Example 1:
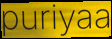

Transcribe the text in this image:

puriyaa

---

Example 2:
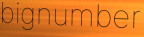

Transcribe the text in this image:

bignumber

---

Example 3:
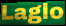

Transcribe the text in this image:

Laglo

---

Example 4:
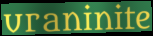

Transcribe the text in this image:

uraninite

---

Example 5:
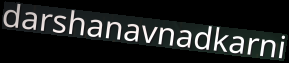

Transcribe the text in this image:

darshanavnadkarni